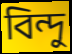
বিন্দু